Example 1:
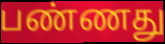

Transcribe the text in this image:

பண்ணது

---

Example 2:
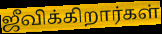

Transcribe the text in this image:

ஜீவிக்கிறார்கள்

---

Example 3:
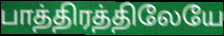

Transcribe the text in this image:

பாத்திரத்திலேயே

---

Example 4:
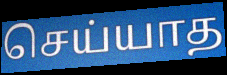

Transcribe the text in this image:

செய்யாத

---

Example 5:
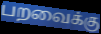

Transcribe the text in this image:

பறவைக்கு